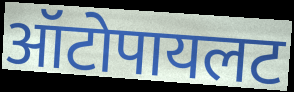
ऑटोपायलट